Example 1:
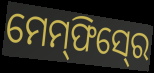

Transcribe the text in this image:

ମେମ୍‍ଫିସ୍‍ରେ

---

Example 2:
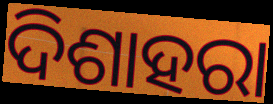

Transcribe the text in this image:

ଦିଶାହରା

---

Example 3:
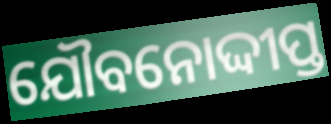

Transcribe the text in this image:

ଯୌବନୋଦ୍ଦୀପ୍ତ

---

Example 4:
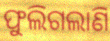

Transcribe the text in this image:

ଫୁଲିଗଲାଣି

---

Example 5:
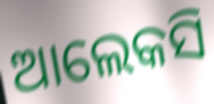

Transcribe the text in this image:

ଆଲେକସି